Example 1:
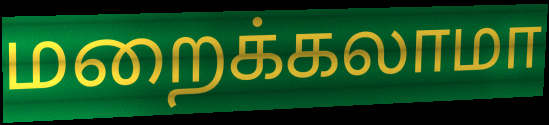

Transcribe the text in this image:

மறைக்கலாமா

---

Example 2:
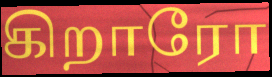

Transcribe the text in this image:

கிறாரோ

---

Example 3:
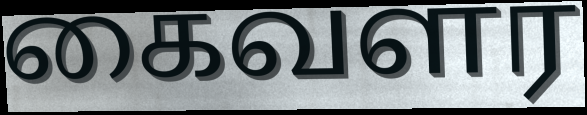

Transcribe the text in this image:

கைவளர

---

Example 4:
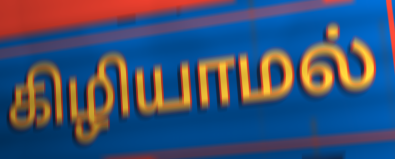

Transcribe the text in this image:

கிழியாமல்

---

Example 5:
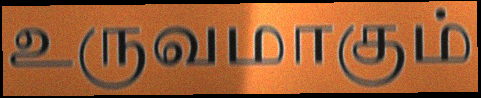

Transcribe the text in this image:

உருவமாகும்